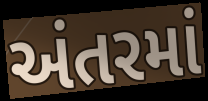
અંતરમાં